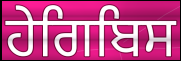
ਹੇਗਿਬਿਸ